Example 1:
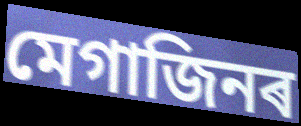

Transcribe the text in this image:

মেগাজিনৰ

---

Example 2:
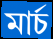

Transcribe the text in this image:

মাৰ্চ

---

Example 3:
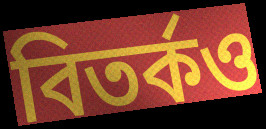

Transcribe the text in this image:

বিতৰ্কও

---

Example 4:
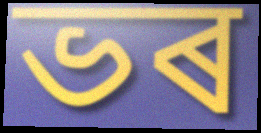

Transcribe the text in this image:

ভৰ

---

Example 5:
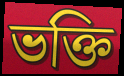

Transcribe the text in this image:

ভক্তি